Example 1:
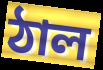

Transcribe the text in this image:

ঠাল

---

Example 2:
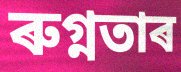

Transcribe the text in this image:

ৰুগ্নতাৰ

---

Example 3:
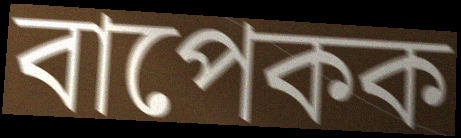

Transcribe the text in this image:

বাপেকক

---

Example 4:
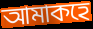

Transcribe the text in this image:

আমাকহে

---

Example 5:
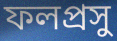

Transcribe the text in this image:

ফলপ্ৰসু